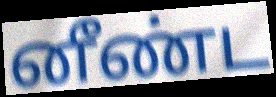
னீண்ட